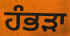
ਹੰਭੜਾ